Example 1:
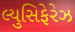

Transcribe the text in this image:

લ્યુસિફેરેઝ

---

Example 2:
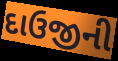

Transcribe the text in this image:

દાઉજીની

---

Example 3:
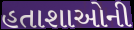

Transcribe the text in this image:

હતાશાઓની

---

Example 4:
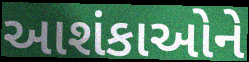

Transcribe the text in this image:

આશંકાઓને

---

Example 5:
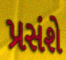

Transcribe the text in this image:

પ્રસંશે